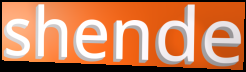
shende